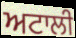
ਅਟਾਲੀ